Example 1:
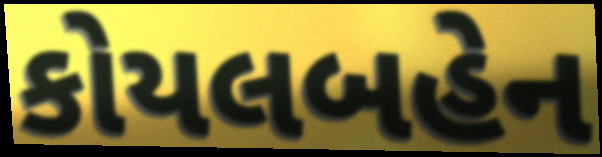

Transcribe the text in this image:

કોયલબહેન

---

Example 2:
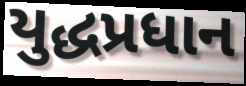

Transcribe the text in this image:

યુદ્ધપ્રધાન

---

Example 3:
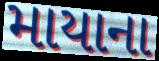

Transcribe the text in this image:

માયાના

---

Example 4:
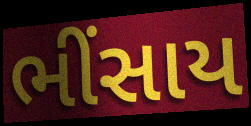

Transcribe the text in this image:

ભીંસાય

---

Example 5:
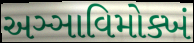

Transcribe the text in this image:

અઞ્ઞાવિમોક્ખં